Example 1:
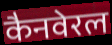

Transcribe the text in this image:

कैनवेरल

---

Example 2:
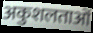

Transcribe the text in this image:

अकुशलताओं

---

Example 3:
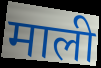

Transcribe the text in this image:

माली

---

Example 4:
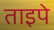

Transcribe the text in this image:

ताइपे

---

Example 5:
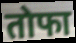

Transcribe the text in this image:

तोफा